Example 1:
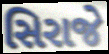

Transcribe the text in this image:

સિરાજે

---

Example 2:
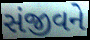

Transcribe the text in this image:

સંજીવને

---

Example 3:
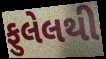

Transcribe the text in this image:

ફુલેલથી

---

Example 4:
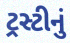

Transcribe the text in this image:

ટ્રસ્ટીનું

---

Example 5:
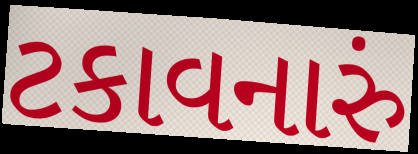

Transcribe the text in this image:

ટકાવનારું